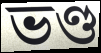
ভণ্ড